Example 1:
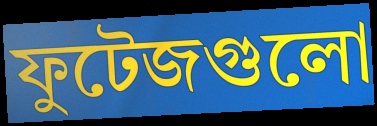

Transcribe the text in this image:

ফুটেজগুলো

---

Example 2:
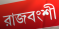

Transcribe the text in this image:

রাজবংশী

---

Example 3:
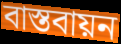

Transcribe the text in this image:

বাস্তবায়ন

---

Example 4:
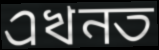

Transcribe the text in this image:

এখনত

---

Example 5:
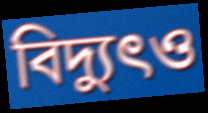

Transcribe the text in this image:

বিদ্যুৎও